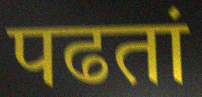
पढतां